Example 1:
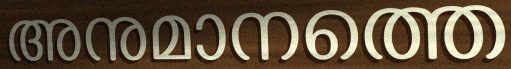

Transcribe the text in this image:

അനുമാനത്തെ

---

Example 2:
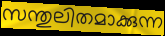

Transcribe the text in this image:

സന്തുലിതമാക്കുന്ന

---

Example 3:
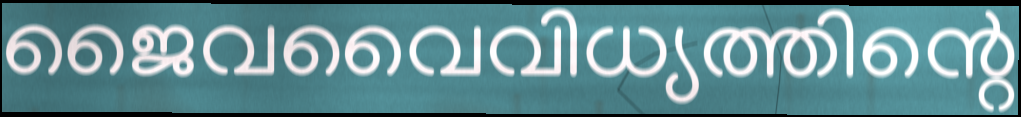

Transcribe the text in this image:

ജൈവവൈവിധ്യത്തിന്റെ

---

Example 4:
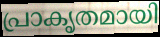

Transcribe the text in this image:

പ്രാകൃതമായി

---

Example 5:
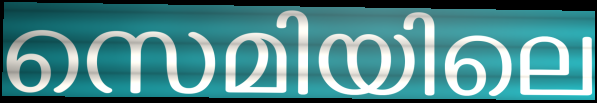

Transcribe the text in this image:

സെമിയിലെ